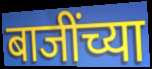
बाजींच्या